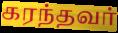
கரந்தவர்